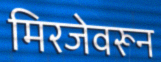
मिरजेवरून